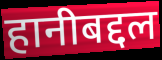
हानीबद्दल